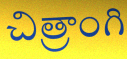
చిత్రాంగి